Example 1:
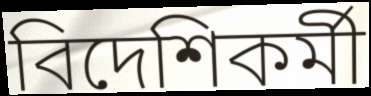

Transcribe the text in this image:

বিদেশিকর্মী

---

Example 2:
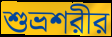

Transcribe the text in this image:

শুভ্রশরীর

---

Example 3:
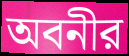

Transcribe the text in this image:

অবনীর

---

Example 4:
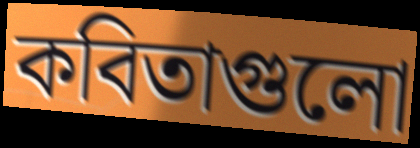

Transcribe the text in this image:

কবিতাগুলো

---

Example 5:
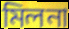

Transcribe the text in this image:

মিলনা